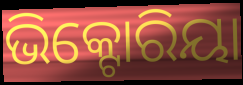
ଭିକ୍ଟୋରିୟା